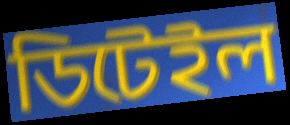
ডিটেইল